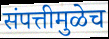
संपत्तीमुळेच